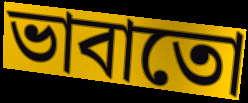
ভাবাতো